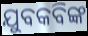
ଯୁବକବିଙ୍କ